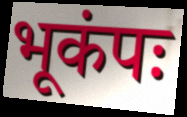
भूकंपः